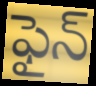
ఫైన్